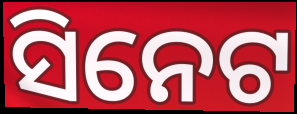
ସିନେଟ